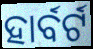
ହାର୍ବର୍ଟ